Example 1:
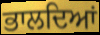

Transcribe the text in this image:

ਭਾਲਦਿਆਂ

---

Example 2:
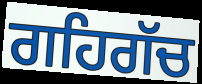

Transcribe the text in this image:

ਗਹਿਗੱਚ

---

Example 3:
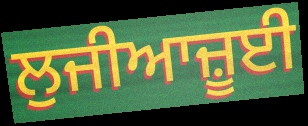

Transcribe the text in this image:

ਲੁਜੀਆਜ਼ੂਈ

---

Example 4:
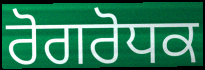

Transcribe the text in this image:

ਰੋਗਰੋਧਕ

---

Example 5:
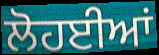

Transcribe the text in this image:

ਲੋਹਈਆਂ